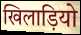
खिलाड़ियो